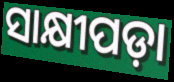
ସାକ୍ଷୀପଡ଼ା